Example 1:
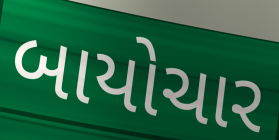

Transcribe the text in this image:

બાયોચાર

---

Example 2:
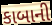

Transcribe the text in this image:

કાબાની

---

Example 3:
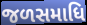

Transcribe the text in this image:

જળસમાધિ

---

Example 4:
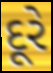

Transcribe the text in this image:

દૂરે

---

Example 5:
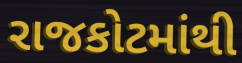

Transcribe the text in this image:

રાજકોટમાંથી